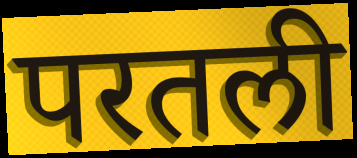
परतली